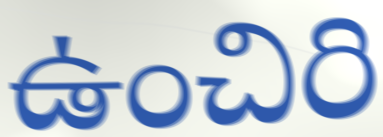
ఉంచిరి